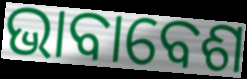
ଭାବାବେଶ